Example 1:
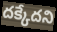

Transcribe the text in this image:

దక్కేదని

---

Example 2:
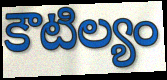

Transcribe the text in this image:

కౌటిల్యం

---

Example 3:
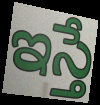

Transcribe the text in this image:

ఇస్తే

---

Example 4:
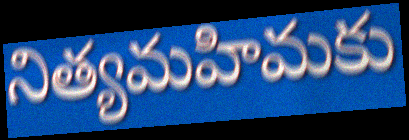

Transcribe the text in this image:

నిత్యమహిమకు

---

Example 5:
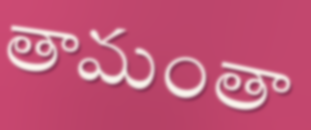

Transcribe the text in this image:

తామంతా